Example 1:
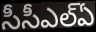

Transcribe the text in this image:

సీసీఎల్ఏ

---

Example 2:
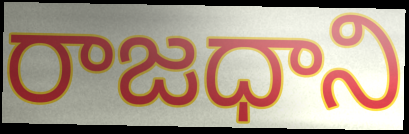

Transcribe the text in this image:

రాజధాని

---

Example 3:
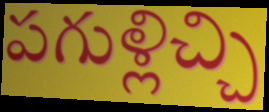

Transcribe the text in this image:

పగుళ్లిచ్చి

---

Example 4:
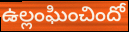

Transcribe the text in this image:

ఉల్లంఘించిందో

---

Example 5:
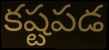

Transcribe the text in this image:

కష్టపడ